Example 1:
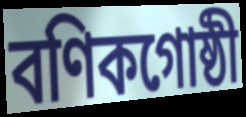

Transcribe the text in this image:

বণিকগোষ্ঠী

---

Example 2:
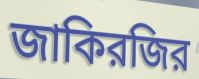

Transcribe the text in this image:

জাকিরজির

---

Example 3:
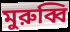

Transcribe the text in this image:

মুরুব্বি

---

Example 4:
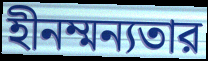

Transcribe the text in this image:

হীনম্মন্যতার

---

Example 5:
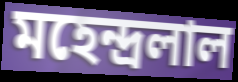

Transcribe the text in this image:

মহেন্দ্রলাল